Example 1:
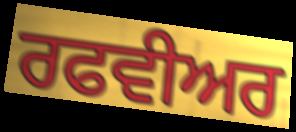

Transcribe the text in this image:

ਰਫਵੀਅਰ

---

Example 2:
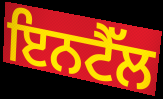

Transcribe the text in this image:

ਇਨਟੈੱਲ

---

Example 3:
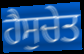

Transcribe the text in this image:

ਹੈਸੁਚੇਤ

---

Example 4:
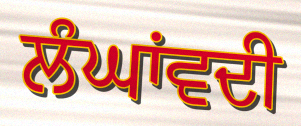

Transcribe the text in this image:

ਲੰਘਾਂਵਦੀ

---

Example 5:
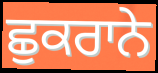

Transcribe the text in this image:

ਛੁਕਰਾਨੇ